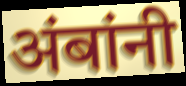
अंबांनी